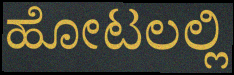
ಹೋಟಲಲ್ಲಿ